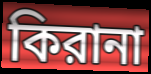
কিরানা